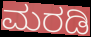
ಮರಡಿ